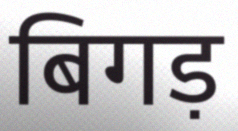
बिगड़